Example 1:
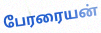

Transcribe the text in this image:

பேரரையன்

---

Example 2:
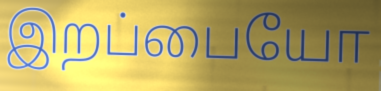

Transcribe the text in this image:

இறப்பையோ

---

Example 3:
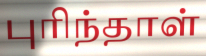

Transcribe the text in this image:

புரிந்தாள்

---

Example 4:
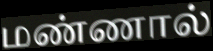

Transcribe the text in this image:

மண்ணால்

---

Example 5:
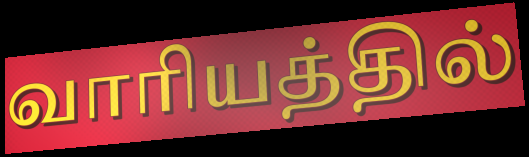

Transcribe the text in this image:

வாரியத்தில்